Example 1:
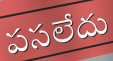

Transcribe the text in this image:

పసలేదు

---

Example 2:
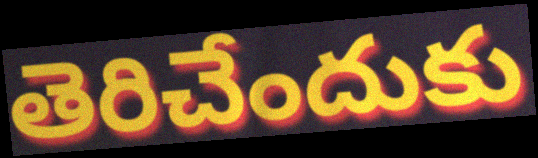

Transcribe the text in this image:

తెరిచేందుకు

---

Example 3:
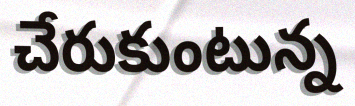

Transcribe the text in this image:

చేరుకుంటున్న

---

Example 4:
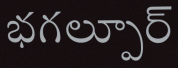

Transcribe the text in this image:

భగల్పూర్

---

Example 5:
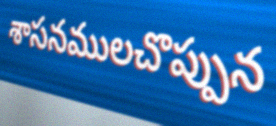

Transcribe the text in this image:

శాసనములచొప్పున